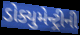
ડોક્યુમેન્ટ્રીની